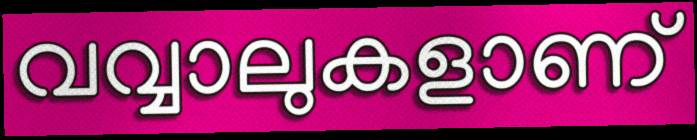
വവ്വാലുകളാണ്